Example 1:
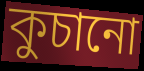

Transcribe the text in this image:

কুচানো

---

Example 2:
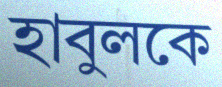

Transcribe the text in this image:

হাবুলকে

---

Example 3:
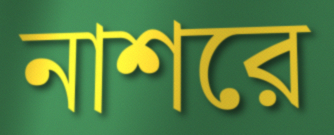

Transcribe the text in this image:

নাশরে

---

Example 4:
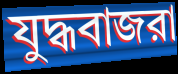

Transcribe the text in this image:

যুদ্ধবাজরা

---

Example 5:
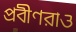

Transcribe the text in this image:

প্রবীণরাও